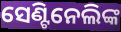
ସେଣ୍ଟିନେଲିଙ୍କ